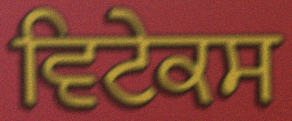
ਵਿਟੇਕਸ